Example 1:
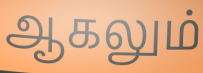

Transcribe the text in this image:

ஆகலும்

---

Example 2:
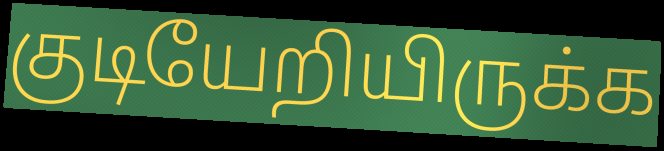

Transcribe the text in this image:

குடியேறியிருக்க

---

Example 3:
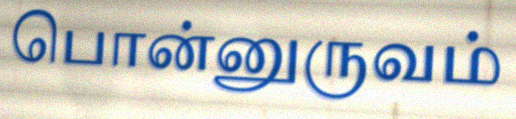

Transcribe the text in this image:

பொன்னுருவம்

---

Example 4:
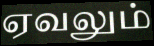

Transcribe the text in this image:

ஏவலும்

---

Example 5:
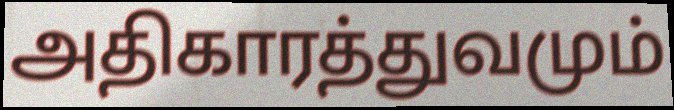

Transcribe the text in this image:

அதிகாரத்துவமும்